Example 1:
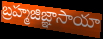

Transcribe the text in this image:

బ్రహ్మజిజ్ఞాసాయా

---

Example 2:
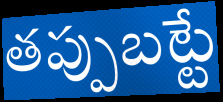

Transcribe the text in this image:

తప్పుబట్టే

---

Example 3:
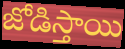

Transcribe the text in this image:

జోడిస్తాయి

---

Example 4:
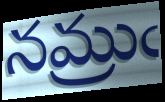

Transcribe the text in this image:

నమ్రుఁ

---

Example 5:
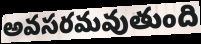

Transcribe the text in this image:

అవసరమవుతుంది